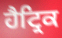
ਹੈਟ੍ਰਿਕ